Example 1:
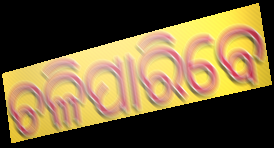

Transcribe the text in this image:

ଚଳିପାରିବେ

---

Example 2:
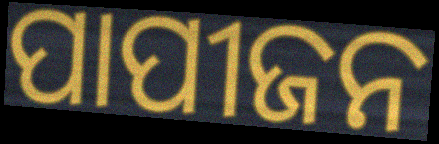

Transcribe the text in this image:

ପାପୀଜନ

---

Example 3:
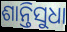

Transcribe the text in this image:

ଶାନ୍ତିସୁଧା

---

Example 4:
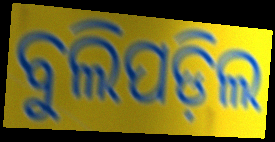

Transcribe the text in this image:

ବୁଲିପଡ଼ିଲ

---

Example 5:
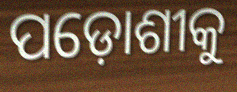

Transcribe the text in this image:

ପଡ଼ୋଶୀକୁ